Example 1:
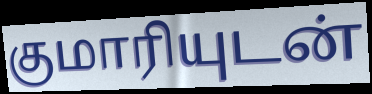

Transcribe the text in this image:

குமாரியுடன்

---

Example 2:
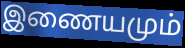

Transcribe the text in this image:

இணையமும்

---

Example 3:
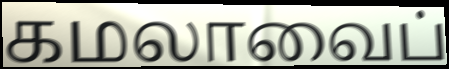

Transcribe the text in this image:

கமலாவைப்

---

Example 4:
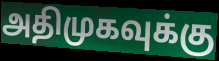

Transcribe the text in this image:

அதிமுகவுக்கு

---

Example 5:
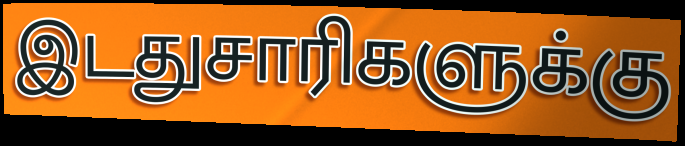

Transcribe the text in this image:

இடதுசாரிகளுக்கு